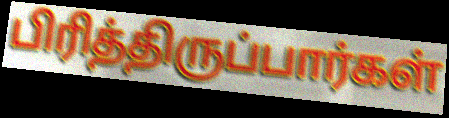
பிரித்திருப்பார்கள்